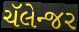
ચૅલેન્જર